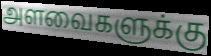
அளவைகளுக்கு